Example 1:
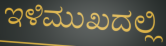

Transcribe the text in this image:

ಇಳಿಮುಖದಲ್ಲಿ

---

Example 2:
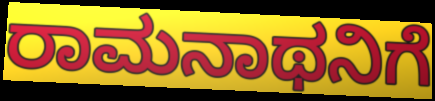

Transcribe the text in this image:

ರಾಮನಾಥನಿಗೆ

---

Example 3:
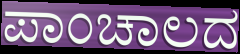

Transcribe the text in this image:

ಪಾಂಚಾಲದ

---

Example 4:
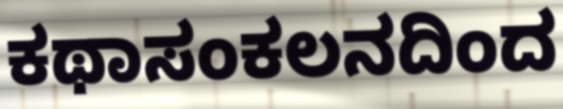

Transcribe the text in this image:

ಕಥಾಸಂಕಲನದಿಂದ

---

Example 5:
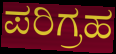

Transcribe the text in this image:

ಪರಿಗ್ರಹ